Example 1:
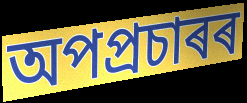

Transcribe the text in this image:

অপপ্ৰচাৰৰ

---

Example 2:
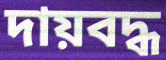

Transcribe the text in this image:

দায়বদ্ধ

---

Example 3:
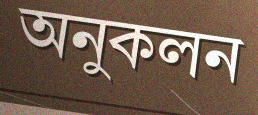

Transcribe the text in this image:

অনুকলন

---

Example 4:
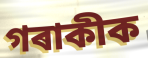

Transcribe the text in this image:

গৰাকীক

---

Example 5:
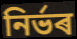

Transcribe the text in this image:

নিৰ্ভৰ